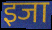
इजा